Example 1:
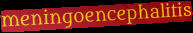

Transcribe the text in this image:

meningoencephalitis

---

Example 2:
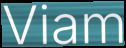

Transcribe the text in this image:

Viam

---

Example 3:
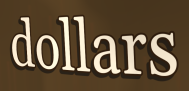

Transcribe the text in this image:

dollars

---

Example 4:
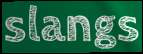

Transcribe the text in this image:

slangs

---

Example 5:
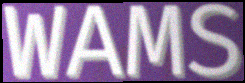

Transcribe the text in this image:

WAMS